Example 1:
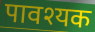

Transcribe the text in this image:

पावश्यक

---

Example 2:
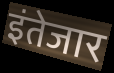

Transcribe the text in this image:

इंतेजार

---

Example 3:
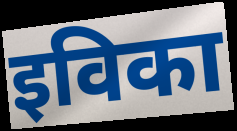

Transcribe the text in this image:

इविका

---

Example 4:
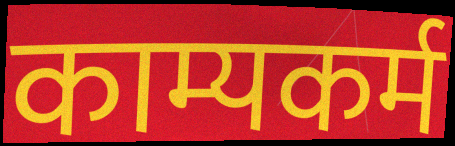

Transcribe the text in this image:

काम्यकर्म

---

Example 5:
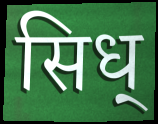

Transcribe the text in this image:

सिध्